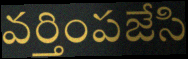
వర్తింపజేసి